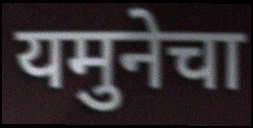
यमुनेचा